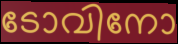
ടോവിനോ